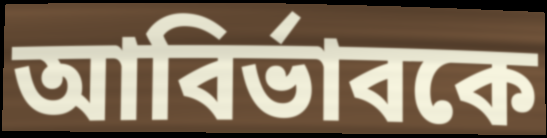
আবির্ভাবকে